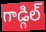
గాడ్గిల్